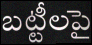
బట్టీలపై